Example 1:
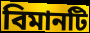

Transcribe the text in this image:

বিমানটি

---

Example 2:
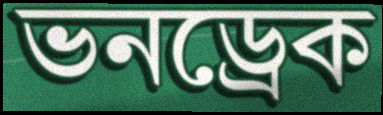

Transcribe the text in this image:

ভনড্রেক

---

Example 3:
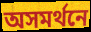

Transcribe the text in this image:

অসমর্থনে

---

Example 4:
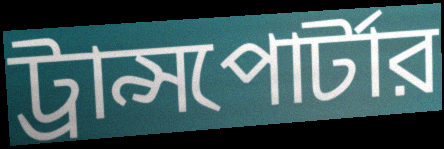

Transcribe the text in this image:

ট্রান্সপোর্টার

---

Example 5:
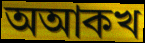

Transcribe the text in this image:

অআকখ